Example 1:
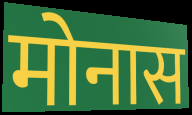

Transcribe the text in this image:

मोनास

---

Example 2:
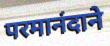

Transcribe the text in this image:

परमानंदाने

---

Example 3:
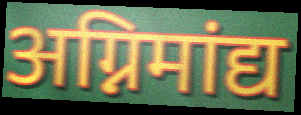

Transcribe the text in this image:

अग्निमांद्य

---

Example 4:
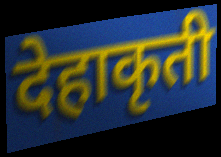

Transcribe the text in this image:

देहाकृती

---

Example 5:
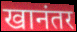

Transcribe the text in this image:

खानंतर